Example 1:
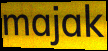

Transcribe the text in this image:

majak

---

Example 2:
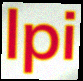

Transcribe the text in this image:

lpi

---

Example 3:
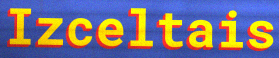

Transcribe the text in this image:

Izceltais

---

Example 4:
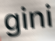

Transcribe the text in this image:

gini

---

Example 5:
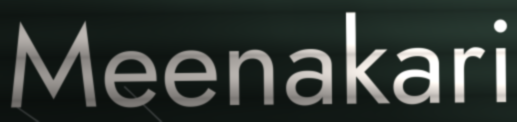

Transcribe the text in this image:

Meenakari